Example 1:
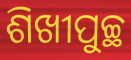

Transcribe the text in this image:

ଶିଖୀପୁଚ୍ଛ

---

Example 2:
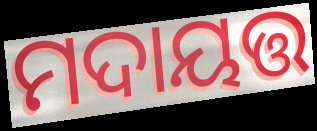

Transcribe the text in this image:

ମଦାୟତ୍ତ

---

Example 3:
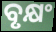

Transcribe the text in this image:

ବୃକ୍ଷଂ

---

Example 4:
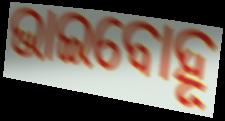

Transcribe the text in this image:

ଭାଇବୋହୂ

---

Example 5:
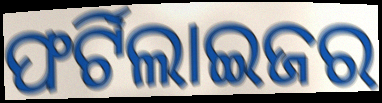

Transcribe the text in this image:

ଫର୍ଟିଲାଇଜର